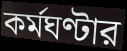
কর্মঘণ্টার